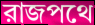
রাজপথে